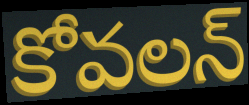
కోవలన్